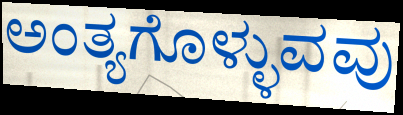
ಅಂತ್ಯಗೊಳ್ಳುವವು